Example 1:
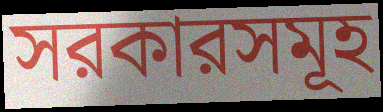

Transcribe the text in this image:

সরকারসমূহ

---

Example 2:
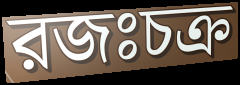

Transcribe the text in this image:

রজঃচক্র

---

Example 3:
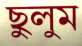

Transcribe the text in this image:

ছুলুম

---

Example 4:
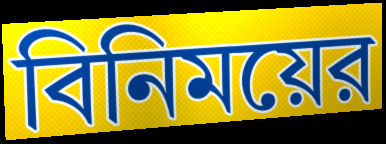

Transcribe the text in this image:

বিনিময়ের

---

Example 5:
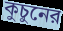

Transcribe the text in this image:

কুচুনের